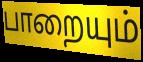
பாறையும்